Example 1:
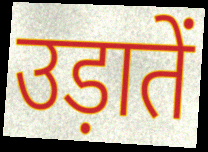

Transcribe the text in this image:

उड़ातें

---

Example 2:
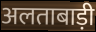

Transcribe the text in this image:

अलताबाड़ी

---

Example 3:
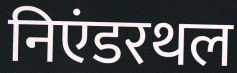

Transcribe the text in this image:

निएंडरथल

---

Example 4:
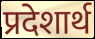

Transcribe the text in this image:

प्रदेशार्थ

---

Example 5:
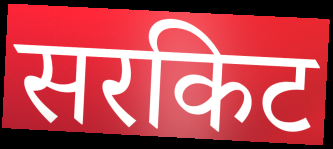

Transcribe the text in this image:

सरकिट